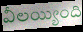
వీలయ్యింది